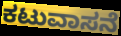
ಕಟುವಾಸನೆ